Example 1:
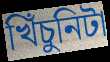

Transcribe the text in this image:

খিঁচুনিটা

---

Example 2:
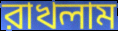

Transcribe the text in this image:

রাখলাম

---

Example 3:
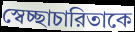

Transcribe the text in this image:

স্বেচ্ছাচারিতাকে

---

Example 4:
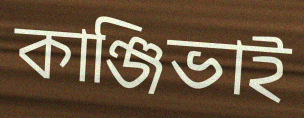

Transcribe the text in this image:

কাঞ্জিভাই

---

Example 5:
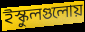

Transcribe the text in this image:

ইস্কুলগুলোয়